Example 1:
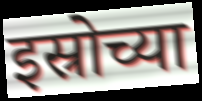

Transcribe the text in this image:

इस्रोच्या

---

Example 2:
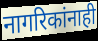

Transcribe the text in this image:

नागरिकांनाही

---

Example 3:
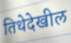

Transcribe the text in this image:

तिथेदेखील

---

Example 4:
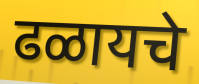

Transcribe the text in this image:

ढळायचे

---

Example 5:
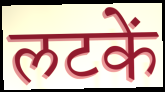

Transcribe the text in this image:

लटकें